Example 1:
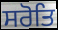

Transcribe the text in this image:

ਸਰੋਤਿ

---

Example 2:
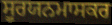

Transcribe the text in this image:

ਸੂਰਯਨਮਾਸਕਰ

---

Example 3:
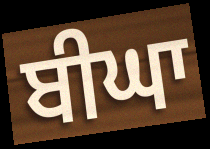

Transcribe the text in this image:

ਬੀਘਾ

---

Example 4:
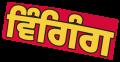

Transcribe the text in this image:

ਵਿੰਗਿੰਗ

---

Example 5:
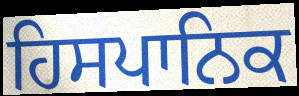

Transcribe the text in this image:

ਹਿਸਪਾਨਿਕ